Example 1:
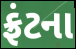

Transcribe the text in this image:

ફ્રંટના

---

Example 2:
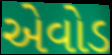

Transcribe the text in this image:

એવોડ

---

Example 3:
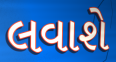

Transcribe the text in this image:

લવાશે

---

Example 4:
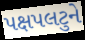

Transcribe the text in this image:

પક્ષપલટુને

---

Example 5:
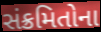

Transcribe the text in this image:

સંક્રમિતોના